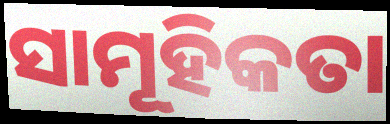
ସାମୂହିକତା